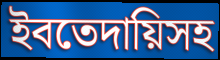
ইবতেদায়িসহ